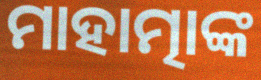
ମାହାତ୍ମାଙ୍କ